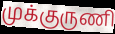
முக்குருணி